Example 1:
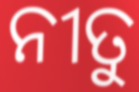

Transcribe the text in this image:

ନୀତୁ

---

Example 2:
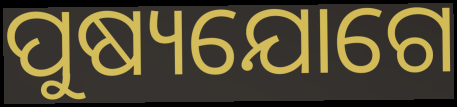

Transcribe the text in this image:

ପୁଷ୍ୟଯୋଗେ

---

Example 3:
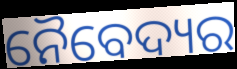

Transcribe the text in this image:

ନୈବେଦ୍ୟର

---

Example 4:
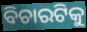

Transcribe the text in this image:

ବିଚାରଟିକୁ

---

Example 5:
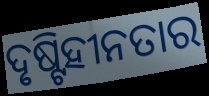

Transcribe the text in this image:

ଦୃଷ୍ଟିହୀନତାର